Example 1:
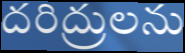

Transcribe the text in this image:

దరిద్రులను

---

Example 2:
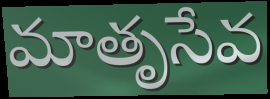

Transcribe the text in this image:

మాతృసేవ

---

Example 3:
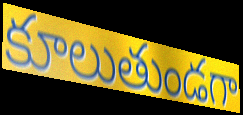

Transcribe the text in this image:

కూలుతుండగా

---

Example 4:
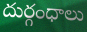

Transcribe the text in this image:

దుర్గంధాలు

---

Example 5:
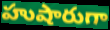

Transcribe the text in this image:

హుషారుగా